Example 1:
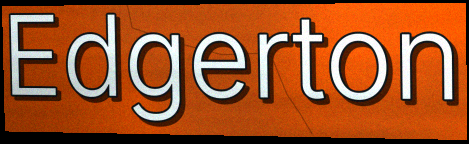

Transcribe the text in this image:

Edgerton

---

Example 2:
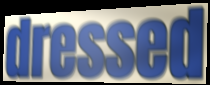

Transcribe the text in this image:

dressed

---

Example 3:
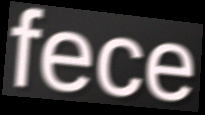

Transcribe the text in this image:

fece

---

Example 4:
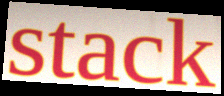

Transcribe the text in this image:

stack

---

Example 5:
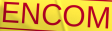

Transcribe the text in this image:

ENCOM